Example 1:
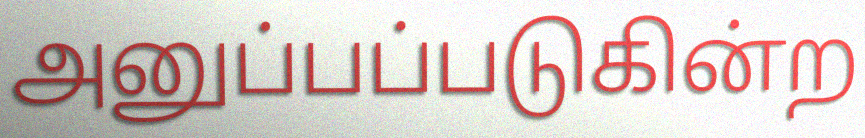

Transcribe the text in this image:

அனுப்பப்படுகின்ற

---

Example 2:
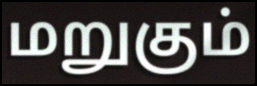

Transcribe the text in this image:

மறுகும்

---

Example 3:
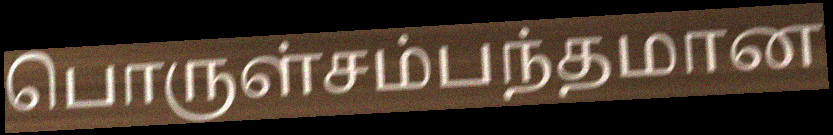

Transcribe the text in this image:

பொருள்சம்பந்தமான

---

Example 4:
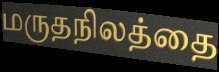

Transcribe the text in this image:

மருதநிலத்தை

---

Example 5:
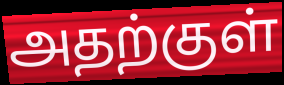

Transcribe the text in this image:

அதற்குள்